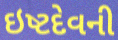
ઇષ્ટદેવની